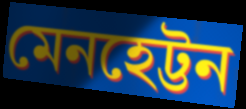
মেনহেট্টন